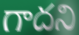
గాదని